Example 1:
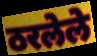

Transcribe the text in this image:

ठरलेले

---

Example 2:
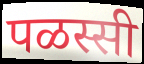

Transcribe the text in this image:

पळस्सी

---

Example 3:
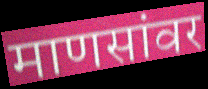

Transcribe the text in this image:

माणसांवर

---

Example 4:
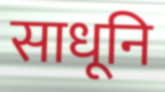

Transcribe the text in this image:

साधूनि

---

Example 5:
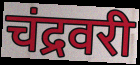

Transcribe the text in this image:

चंद्रवरी